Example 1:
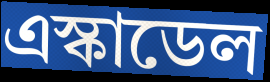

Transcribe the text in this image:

এস্কাডেল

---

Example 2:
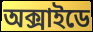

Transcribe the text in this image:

অক্সাইডে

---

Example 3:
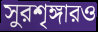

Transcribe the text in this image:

সুরশৃঙ্গারও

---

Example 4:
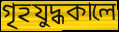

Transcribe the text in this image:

গৃহযুদ্ধকালে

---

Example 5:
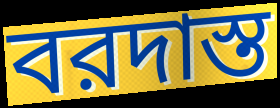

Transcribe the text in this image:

বরদাস্ত